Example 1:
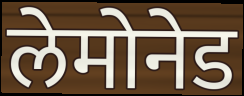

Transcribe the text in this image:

लेमोनेड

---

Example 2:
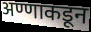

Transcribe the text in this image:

अण्णाकडून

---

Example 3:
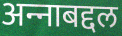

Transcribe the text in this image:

अन्‍नाबद्दल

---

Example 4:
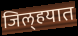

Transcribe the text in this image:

जिल्हयात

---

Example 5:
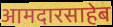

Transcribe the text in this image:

आमदारसाहेब